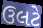
ઉલટે